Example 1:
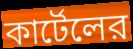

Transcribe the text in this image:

কার্টেলের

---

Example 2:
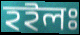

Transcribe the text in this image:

হইলঃ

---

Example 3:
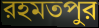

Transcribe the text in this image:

রহমতপুর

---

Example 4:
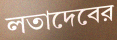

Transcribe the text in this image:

লতাদেবের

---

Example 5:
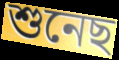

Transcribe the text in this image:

শুনেছ